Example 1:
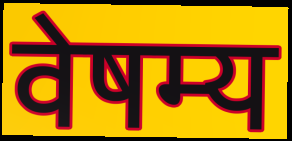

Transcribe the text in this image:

वेषम्य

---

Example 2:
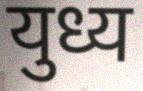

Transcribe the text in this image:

युध्य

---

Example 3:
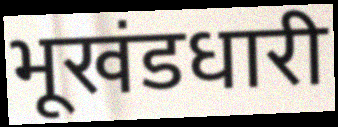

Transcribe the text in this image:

भूखंडधारी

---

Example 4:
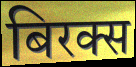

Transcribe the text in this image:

बिरक्स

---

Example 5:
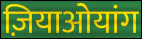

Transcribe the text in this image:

ज़ियाओयांग